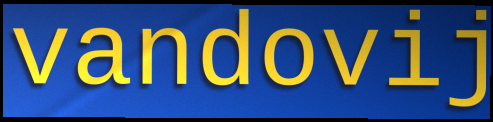
vandovij